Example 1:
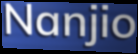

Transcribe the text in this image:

Nanjio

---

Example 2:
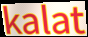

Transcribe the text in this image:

kalat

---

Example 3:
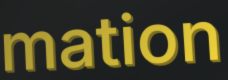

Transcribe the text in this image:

mation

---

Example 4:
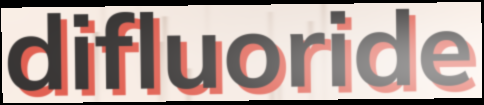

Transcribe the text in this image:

difluoride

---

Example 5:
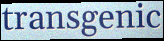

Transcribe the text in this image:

transgenic